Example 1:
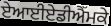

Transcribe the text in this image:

ਏਆਈਏਡੀਐੱਮਕੇ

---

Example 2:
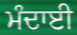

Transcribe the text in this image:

ਮੰਦਾਈ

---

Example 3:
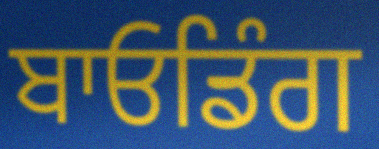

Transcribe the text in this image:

ਬਾਓਡਿੰਗ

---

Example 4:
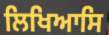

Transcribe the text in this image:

ਲਿਖਿਆਸਿ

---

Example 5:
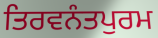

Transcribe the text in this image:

ਤਿਰਵਨੰਤਪੁਰਮ